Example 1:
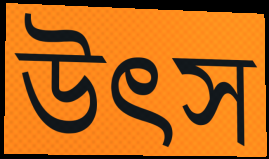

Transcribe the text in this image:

উৎস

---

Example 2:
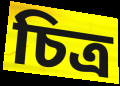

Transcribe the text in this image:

চিত্ৰ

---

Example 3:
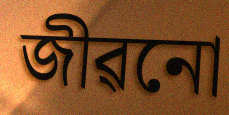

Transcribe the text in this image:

জীৱনো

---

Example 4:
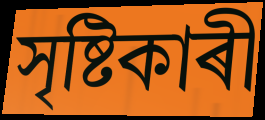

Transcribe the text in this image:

সৃষ্টিকাৰী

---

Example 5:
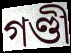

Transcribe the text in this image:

গণ্ডী